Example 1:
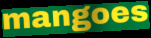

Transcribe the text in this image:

mangoes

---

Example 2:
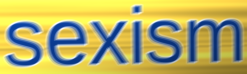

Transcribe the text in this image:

sexism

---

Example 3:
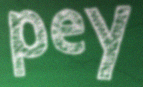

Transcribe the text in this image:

pey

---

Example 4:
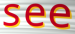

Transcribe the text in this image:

see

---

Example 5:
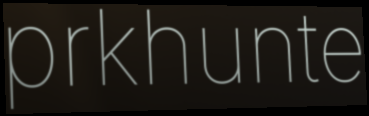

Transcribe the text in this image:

prkhunte